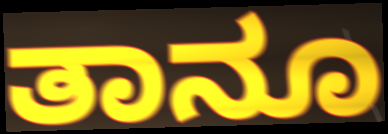
ತಾನೂ